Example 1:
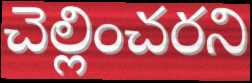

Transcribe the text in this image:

చెల్లించరని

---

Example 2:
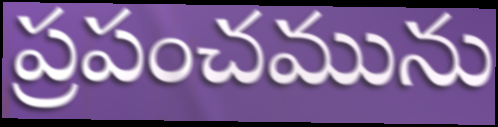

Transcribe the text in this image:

ప్రపంచమును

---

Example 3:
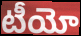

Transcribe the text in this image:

టీయో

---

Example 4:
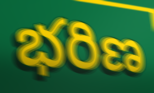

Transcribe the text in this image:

భరిణ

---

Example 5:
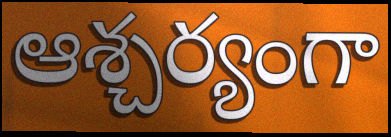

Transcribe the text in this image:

ఆశ్చర్యంగా